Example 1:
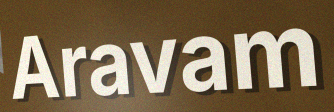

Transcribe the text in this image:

Aravam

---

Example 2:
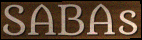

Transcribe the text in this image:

SABAs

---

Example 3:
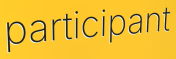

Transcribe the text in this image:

participant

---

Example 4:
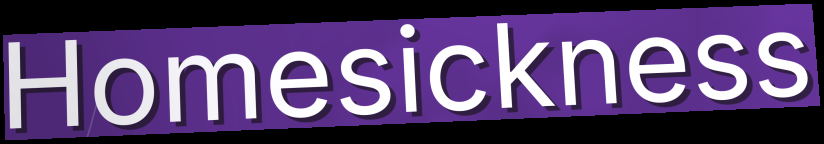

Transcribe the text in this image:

Homesickness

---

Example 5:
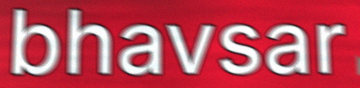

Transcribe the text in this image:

bhavsar